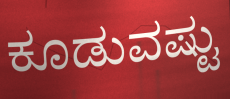
ಕೂಡುವಷ್ಟು